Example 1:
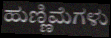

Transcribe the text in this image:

ಹುಣ್ಣಿಮೆಗಳು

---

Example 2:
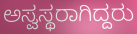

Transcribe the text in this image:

ಅಸ್ವಸ್ಥರಾಗಿದ್ದರು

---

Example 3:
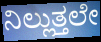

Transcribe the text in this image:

ನಿಲ್ಲುತ್ತಲೇ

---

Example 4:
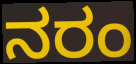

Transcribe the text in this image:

ನರಂ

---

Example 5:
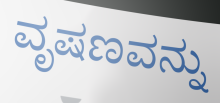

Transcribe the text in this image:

ವೃಷಣವನ್ನು